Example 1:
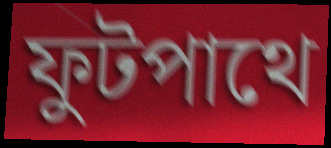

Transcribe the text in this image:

ফুটপাথে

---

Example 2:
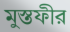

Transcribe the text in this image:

মুস্তফীর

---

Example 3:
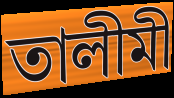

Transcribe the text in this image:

তালীমী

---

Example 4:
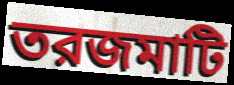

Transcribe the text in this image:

তরজমাটি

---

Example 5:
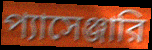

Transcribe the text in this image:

প্যাসেঞ্জারি